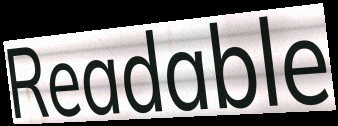
Readable